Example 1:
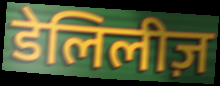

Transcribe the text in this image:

डेलिलीज़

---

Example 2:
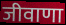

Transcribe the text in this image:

जीवाणा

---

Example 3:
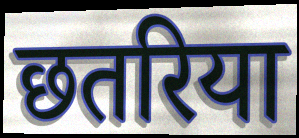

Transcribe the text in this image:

छतरिया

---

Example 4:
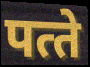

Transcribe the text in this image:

पत्‍ते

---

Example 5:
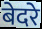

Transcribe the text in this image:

बेदरे